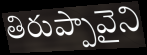
తిరుప్పావైని